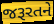
જરૂરતને